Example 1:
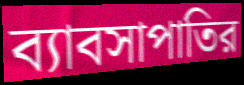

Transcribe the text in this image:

ব্যাবসাপাতির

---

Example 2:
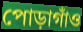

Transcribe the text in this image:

পোড়াগাঁও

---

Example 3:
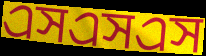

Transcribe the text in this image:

এসএসএস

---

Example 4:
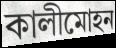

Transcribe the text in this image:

কালীমোহন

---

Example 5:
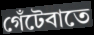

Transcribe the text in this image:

গেঁটেবাতে